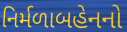
નિર્મળાબહેનનો